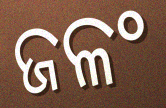
ଜଳଂ